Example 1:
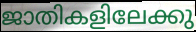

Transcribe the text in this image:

ജാതികളിലേക്കു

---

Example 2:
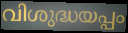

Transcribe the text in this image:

വിശുദ്ധയപ്പം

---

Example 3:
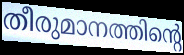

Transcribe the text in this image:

തീരുമാനത്തിന്റെ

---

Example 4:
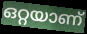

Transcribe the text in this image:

ഒറ്റയാണ്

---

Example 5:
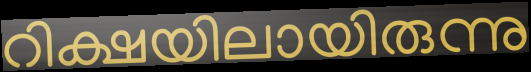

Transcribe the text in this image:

റിക്ഷയിലായിരുന്നു